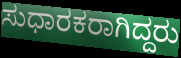
ಸುಧಾರಕರಾಗಿದ್ದರು